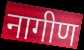
नागीण